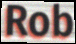
Rob